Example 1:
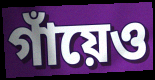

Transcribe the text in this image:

গাঁয়েও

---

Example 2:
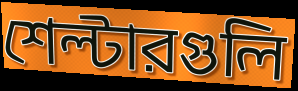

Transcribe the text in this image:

শেল্টারগুলি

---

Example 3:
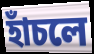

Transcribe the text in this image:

হাঁচলে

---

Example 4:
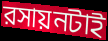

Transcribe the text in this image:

রসায়নটাই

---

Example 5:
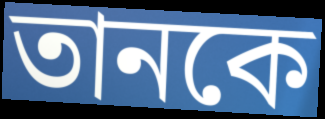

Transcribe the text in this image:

তানকে